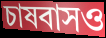
চাষবাসও